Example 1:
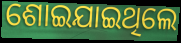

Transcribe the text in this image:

ଶୋଇଯାଇଥିଲେ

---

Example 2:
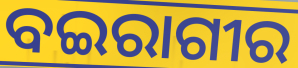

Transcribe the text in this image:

ବଇରାଗୀର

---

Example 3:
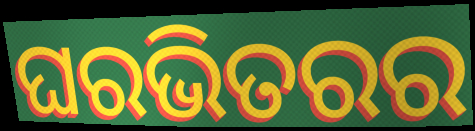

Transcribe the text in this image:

ଘରଭିତରର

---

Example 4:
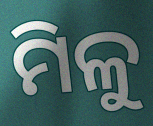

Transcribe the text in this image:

ମିଳୁ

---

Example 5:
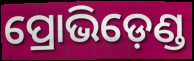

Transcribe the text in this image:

ପ୍ରୋଭିଡ଼େଣ୍ଡ